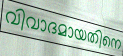
വിവാദമായതിനെ